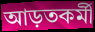
আড়তকর্মী